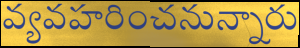
వ్యవహరించనున్నారు